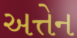
અત્તેન